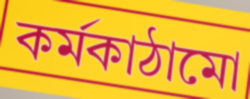
কর্মকাঠামো